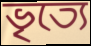
ভৃত্যে